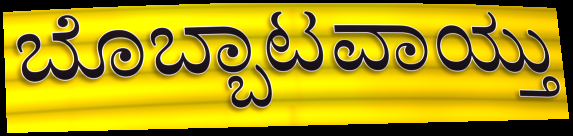
ಬೊಬ್ಬಾಟವಾಯ್ತು